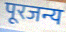
पूरजन्य